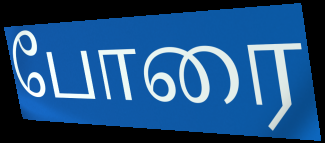
போரை